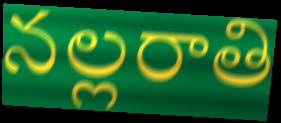
నల్లరాతి